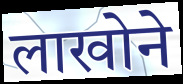
लाखोने